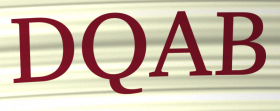
DQAB